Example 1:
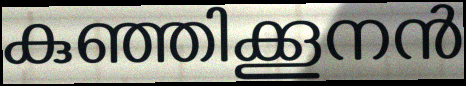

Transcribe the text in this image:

കുഞ്ഞിക്കൂനൻ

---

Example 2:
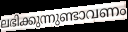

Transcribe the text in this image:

ലഭിക്കുന്നുണ്ടാവണം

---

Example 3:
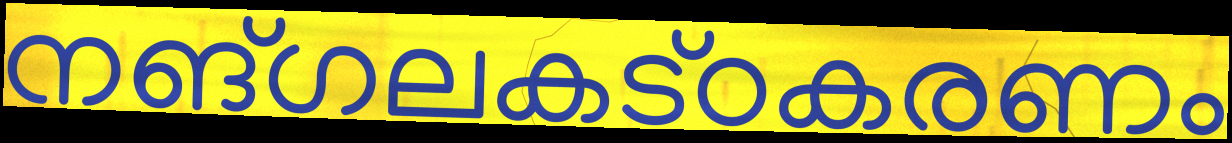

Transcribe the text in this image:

നങ്ഗലകട്ഠകരണം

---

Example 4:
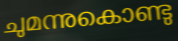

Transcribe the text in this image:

ചുമന്നുകൊണ്ടു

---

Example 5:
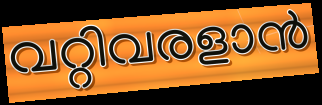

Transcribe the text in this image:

വറ്റിവരളാൻ